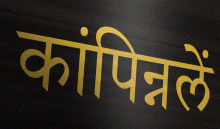
कांपिन्नलें